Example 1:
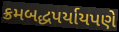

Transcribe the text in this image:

ક્રમબદ્ધપર્યાયપણે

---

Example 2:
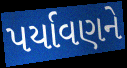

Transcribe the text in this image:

પર્યાવણને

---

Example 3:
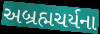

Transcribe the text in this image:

અબ્રહ્મચર્યના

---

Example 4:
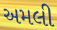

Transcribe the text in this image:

અમલી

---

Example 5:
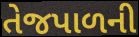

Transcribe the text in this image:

તેજપાળની